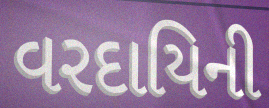
વરદાયિની